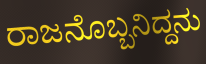
ರಾಜನೊಬ್ಬನಿದ್ದನು